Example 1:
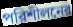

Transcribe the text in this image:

পরিশীলনের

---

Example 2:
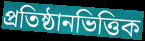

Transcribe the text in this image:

প্রতিষ্ঠানভিত্তিক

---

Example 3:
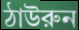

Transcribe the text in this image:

ঠাউরুন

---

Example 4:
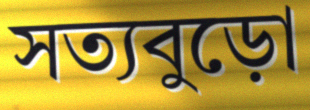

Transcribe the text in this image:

সত্যবুড়ো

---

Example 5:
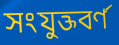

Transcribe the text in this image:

সংযুক্তবর্ণ